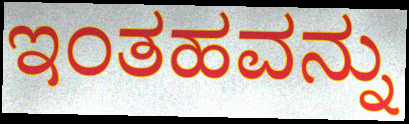
ಇಂತಹವನ್ನು